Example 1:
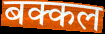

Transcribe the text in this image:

बक्कल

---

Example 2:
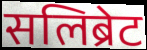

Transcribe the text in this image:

सलिब्रेट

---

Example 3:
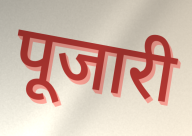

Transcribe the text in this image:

पूजारी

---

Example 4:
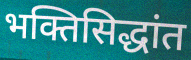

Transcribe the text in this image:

भक्तिसिद्धांत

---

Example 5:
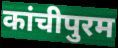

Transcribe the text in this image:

कांचीपुरम